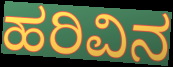
ಹರಿವಿನ